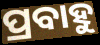
ପ୍ରବାହୁ